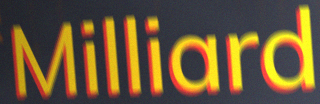
Milliard